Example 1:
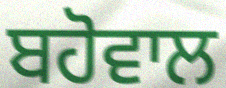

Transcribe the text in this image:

ਬਹੋਵਾਲ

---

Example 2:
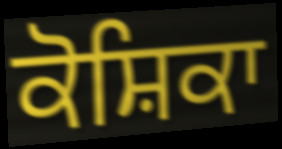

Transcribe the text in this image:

ਕੋਸ਼ਿਕਾ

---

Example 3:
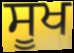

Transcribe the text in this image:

ਸੂਖ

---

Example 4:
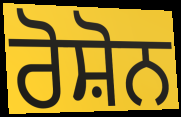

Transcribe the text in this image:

ਰੋਸ਼ੋਨ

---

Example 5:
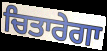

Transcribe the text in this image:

ਚਿਤਾਰੇਗਾ